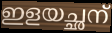
ഇളയച്ഛന്